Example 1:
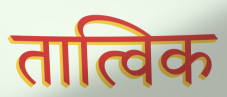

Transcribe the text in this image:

तात्विक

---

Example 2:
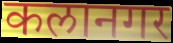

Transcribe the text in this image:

कलानगर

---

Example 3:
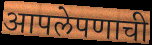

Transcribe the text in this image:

आपलेपणाची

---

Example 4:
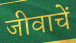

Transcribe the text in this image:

जीवाचें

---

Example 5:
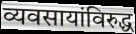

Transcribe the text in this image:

व्यवसायांविरुद्ध